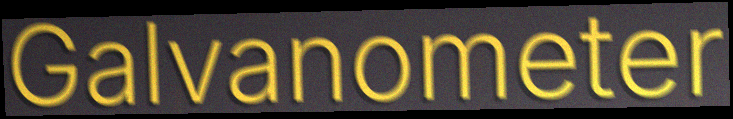
Galvanometer